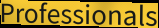
Professionals